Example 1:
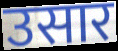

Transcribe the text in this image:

उसार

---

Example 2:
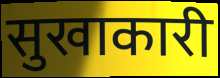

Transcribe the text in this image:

सुखाकारी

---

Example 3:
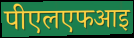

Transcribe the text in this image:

पीएलएफआइ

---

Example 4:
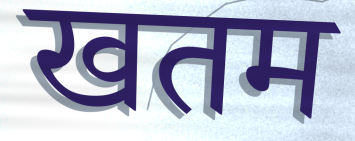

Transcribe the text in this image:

खतम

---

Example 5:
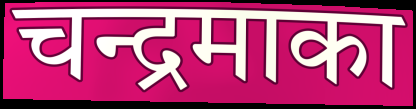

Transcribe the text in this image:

चन्द्रमाका